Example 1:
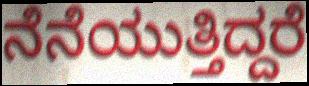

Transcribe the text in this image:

ನೆನೆಯುತ್ತಿದ್ದರೆ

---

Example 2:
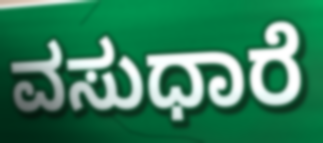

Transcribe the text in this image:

ವಸುಧಾರೆ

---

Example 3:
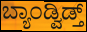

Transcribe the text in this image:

ಬ್ಯಾಂಡ್ವಿಡ್ತ್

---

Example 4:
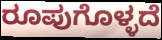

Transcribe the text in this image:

ರೂಪುಗೊಳ್ಳದೆ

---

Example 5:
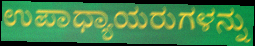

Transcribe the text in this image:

ಉಪಾಧ್ಯಾಯರುಗಳನ್ನು